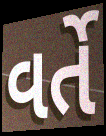
વર્તે